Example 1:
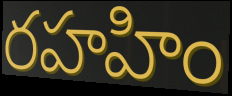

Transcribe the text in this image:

రహహిం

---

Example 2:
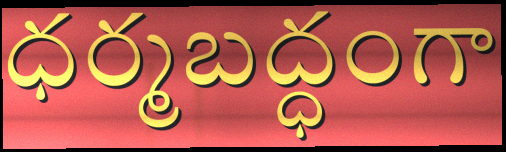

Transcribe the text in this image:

ధర్మబద్ధంగా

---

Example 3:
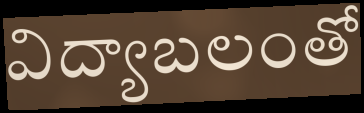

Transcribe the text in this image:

విద్యాబలంతో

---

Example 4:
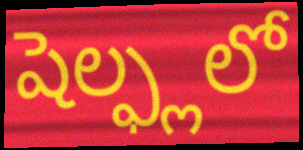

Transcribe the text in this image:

షెల్ఫ్లలో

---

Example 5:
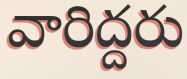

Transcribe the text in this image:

వారిద్దరు